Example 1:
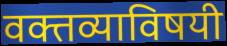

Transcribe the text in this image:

वक्तव्याविषयी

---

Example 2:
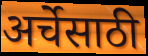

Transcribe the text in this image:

अर्चेसाठी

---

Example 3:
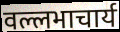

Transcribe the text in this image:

वल्लभाचार्य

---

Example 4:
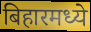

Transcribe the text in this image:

बिहारमध्ये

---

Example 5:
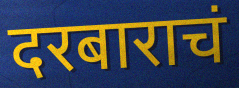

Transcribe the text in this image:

दरबाराचं